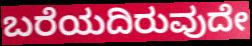
ಬರೆಯದಿರುವುದೇ